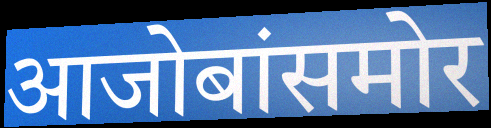
आजोबांसमोर